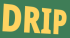
DRIP